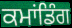
ਕਮਾਂਡਿੰਗ